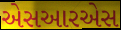
એસઆરએસ